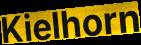
Kielhorn